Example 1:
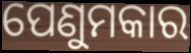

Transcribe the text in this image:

ପେଣୁମକାର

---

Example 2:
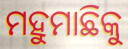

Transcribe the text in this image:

ମହୁମାଛିକୁ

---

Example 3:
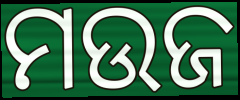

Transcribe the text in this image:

ମଉଜ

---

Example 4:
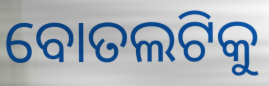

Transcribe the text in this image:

ବୋତଲଟିକୁ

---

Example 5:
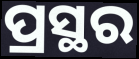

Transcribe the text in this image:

ପ୍ରସ୍ଥର